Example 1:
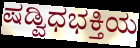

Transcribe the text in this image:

ಷಡ್ವಿಧಭಕ್ತಿಯ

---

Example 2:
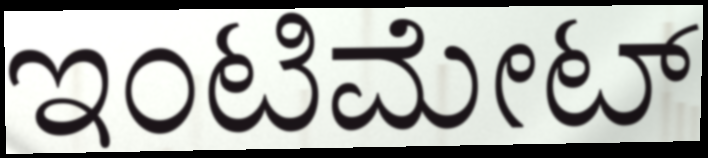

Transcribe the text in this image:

ಇಂಟಿಮೇಟ್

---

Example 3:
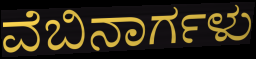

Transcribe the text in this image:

ವೆಬಿನಾರ್ಗಳು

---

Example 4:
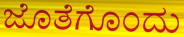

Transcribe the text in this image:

ಜೊತೆಗೊಂದು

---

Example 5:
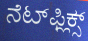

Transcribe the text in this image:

ನೆಟ್‌ಫ್ಲಿಕ್ಸ್